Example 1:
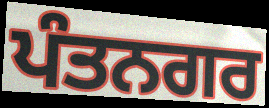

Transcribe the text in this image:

ਪੰਤਨਗਰ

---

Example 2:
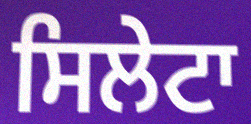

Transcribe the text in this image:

ਸਿਲੇਟਾ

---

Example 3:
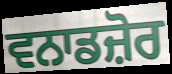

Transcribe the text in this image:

ਵਨਾਡਜ਼ੋਰ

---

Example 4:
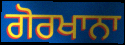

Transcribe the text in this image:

ਗੋਰਖਾਨਾ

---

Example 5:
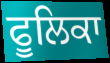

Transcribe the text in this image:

ਫੂਲਿਕਾ